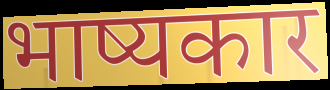
भाष्यकार